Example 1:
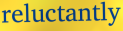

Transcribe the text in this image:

reluctantly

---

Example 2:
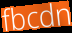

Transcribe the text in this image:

fbcdn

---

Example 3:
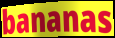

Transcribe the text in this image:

bananas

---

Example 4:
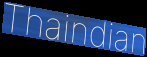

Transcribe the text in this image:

Thaindian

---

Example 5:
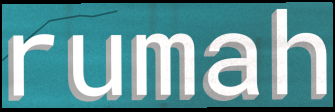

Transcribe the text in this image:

rumah